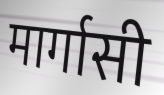
मार्गासी